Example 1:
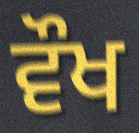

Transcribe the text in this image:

ਵੌਖ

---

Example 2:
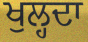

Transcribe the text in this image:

ਖੁਲ੍ਹਦਾ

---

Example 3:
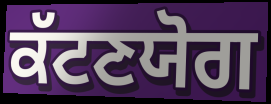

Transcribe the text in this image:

ਕੱਟਣਯੋਗ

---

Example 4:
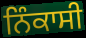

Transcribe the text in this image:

ਨਿੰਕਾਸੀ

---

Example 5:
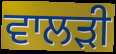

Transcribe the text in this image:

ਵਾਲੜੀ